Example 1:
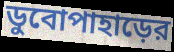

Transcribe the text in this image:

ডুবোপাহাড়ের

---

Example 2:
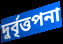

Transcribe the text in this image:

দুর্বৃত্তপনা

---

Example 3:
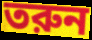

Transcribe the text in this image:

তরুন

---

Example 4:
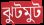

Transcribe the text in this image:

ঝুটমুট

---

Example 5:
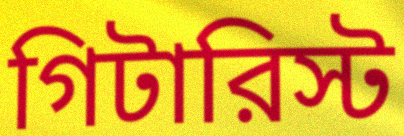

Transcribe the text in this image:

গিটারিস্ট